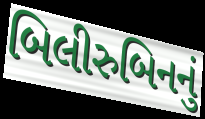
બિલીરુબિનનું